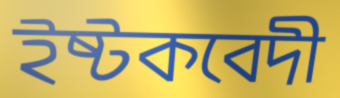
ইষ্টকবেদী